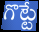
గొట్టే